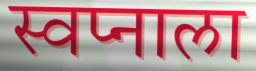
स्वप्नाला